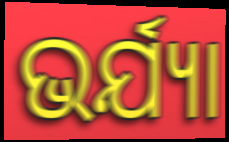
ଭର୍ଯ୍ୟା